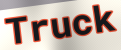
Truck